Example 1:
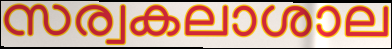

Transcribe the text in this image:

സര്വകലാശാല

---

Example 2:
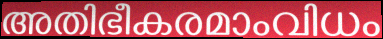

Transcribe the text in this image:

അതിഭീകരമാംവിധം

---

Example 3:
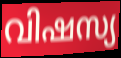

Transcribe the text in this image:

വിഷസ്യ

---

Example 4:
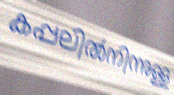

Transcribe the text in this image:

കപ്പലിൽനിന്നുള്ള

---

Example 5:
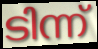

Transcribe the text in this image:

ടിന്ന്